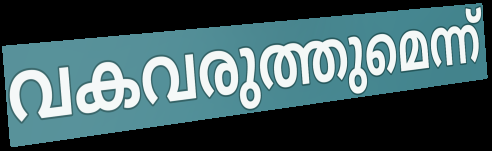
വകവരുത്തുമെന്ന്